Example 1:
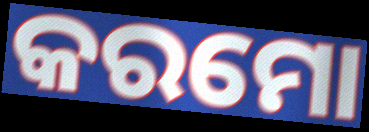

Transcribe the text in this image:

କରମୋ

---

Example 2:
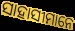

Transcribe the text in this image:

ସାହାସୀମାନେ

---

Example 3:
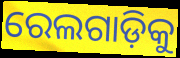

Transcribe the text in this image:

ରେଲଗାଡ଼ିକୁ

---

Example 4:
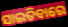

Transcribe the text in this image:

ସାଇତିବାରେ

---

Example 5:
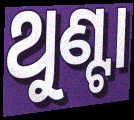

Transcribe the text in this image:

ଥୁଣ୍ଟା